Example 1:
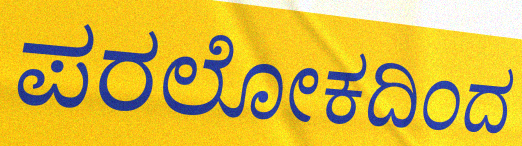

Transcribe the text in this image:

ಪರಲೋಕದಿಂದ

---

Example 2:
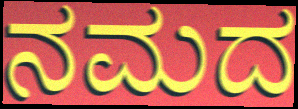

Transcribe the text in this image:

ನಮದ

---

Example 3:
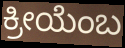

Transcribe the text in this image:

ಕ್ರೀಯೆಂಬ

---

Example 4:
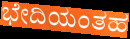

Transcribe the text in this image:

ಭೇದಿಯಂತಹ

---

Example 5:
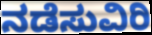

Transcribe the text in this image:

ನಡೆಸುವಿರಿ